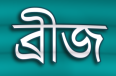
ব্ৰীজ